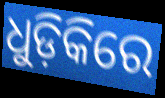
ଧୁଡ଼ିକିରେ